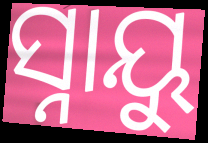
ସ୍ନାୟୁ